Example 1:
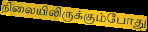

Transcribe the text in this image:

நிலையிலிருக்கும்போது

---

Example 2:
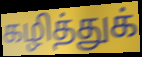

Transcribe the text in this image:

கழித்துக்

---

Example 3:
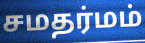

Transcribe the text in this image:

சமதர்மம்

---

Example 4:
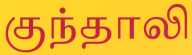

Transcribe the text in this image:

குந்தாலி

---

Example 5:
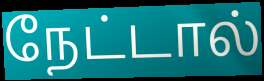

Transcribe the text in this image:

நேட்டால்